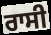
ਰਾਸੀ